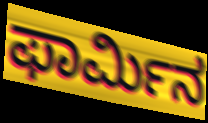
ಫಾರ್ಮಿನ